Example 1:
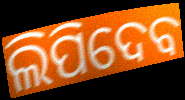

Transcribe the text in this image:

ଲିପିଦେବ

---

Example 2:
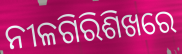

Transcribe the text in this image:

ନୀଳଗିରିଶିଖରେ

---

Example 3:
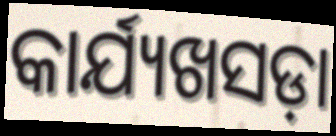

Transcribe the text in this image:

କାର୍ଯ୍ୟଖସଡ଼ା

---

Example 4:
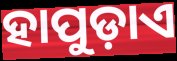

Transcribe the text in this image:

ହାପୁଡ଼ାଏ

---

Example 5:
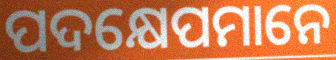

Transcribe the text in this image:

ପଦକ୍ଷେପମାନେ